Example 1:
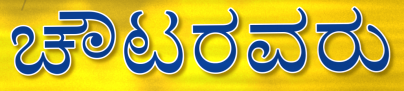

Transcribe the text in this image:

ಚೌಟರವರು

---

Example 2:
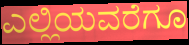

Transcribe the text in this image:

ಎಲ್ಲಿಯವರೆಗೂ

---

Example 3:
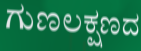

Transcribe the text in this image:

ಗುಣಲಕ್ಷಣದ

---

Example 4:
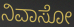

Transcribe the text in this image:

ನಿವಾಸೋ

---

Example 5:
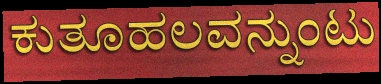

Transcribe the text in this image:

ಕುತೂಹಲವನ್ನುಂಟು